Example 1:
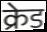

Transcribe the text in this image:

क्रेड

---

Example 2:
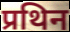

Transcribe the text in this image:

प्रथिन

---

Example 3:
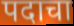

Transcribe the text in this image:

पदाचा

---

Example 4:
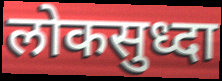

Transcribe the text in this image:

लोकसुध्दा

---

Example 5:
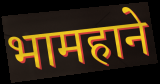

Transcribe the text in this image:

भामहाने